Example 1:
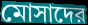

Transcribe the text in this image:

মোসাদের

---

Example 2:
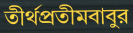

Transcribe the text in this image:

তীর্থপ্রতীমবাবুর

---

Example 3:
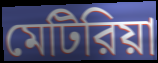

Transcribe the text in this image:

মেটিরিয়া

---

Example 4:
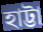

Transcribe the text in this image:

হাট্টা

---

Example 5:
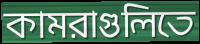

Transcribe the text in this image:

কামরাগুলিতে